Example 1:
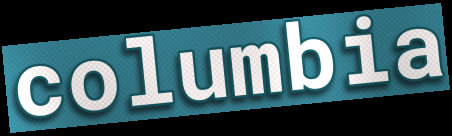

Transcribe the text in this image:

columbia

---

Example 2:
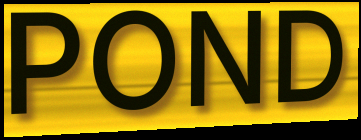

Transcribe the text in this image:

POND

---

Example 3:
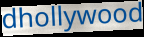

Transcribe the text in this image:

dhollywood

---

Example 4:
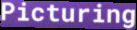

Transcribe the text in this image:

Picturing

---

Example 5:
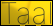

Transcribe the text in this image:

Taal